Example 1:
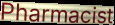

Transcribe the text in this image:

Pharmacist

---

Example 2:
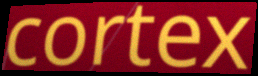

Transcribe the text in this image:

cortex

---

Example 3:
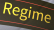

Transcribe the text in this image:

Regime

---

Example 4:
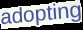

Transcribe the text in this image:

adopting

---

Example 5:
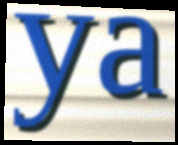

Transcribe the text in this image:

ya